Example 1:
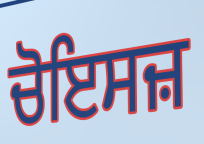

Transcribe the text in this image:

ਚੋਇਸਜ਼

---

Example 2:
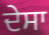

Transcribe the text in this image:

ਦੇਸਾ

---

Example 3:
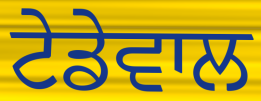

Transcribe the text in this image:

ਟੇਡੇਵਾਲ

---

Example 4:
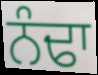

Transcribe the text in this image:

ਨੰਢਾ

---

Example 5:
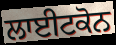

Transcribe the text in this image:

ਲਾਈਟਕੋਨ